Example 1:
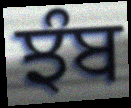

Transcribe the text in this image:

ਝੰਬ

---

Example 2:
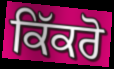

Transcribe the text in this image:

ਕਿੱਕਰੋ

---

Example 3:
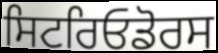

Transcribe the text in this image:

ਸਿਟਰਿਓਡੋਰਸ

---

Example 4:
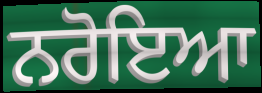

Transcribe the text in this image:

ਨਰੋਇਆ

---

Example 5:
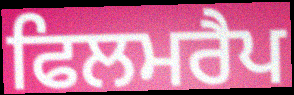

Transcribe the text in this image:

ਫਿਲਮਰੈਪ